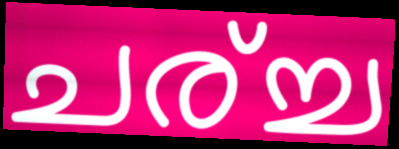
ചര്ച്ച